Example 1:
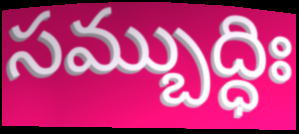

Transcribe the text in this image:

సమ్బుద్ధిః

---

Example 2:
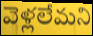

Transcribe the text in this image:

వెళ్లలేమని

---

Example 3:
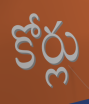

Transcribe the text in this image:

కోర్లు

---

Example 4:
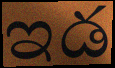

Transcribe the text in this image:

ఇడ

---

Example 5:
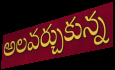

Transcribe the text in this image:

అలవర్చుకున్న